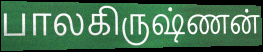
பாலகிருஷ்ணன்